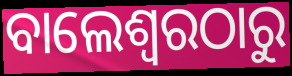
ବାଲେଶ୍ବରଠାରୁ